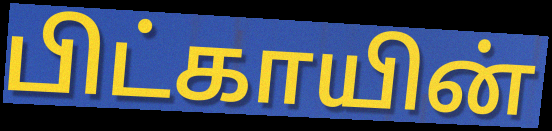
பிட்காயின்